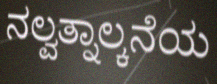
ನಲ್ವತ್ನಾಲ್ಕನೆಯ